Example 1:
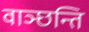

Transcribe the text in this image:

वाञ्छन्ति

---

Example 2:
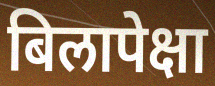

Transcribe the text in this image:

बिलापेक्षा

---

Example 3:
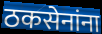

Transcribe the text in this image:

ठकसेनांना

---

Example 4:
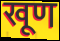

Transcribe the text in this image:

खूण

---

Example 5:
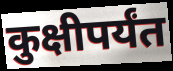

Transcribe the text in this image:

कुक्षीपर्यंत